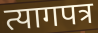
त्यागपत्र